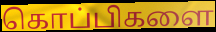
கொப்பிகளை